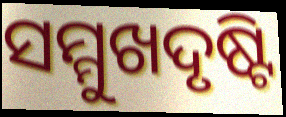
ସମ୍ମୁଖଦୃଷ୍ଟି